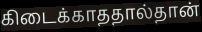
கிடைக்காததால்தான்